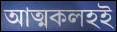
আত্মকলহই